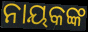
ନାୟକଙ୍କ